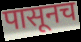
पासूनच